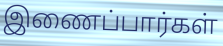
இணைப்பார்கள்